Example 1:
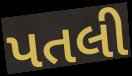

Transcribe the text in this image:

પતલી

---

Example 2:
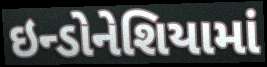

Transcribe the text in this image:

ઇન્ડોનેશિયામાં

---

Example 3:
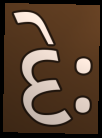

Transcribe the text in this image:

દેઃ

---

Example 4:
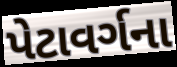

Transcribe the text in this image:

પેટાવર્ગના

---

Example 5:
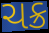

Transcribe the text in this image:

ચક્ર